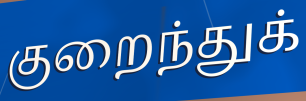
குறைந்துக்